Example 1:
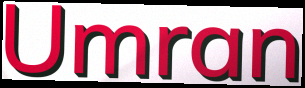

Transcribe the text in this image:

Umran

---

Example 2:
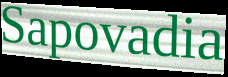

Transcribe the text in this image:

Sapovadia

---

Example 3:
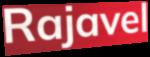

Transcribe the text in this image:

Rajavel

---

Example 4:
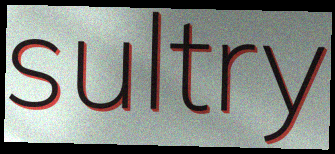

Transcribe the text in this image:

sultry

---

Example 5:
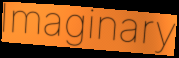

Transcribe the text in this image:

Imaginary